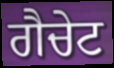
ਗੈਚੇਟ